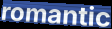
romantic